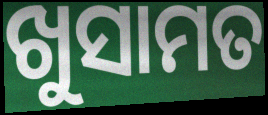
ଖୁସାମତ